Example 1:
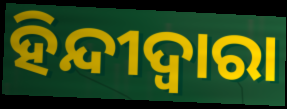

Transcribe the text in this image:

ହିନ୍ଦୀଦ୍ଵାରା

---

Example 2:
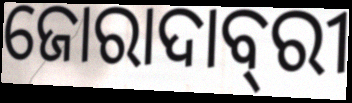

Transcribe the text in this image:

ଜୋରାଦାବ୍‌ରୀ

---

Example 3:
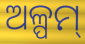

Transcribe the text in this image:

ଅଳ୍ପମ୍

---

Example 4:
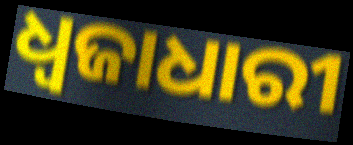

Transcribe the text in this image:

ଧ୍ଵଜାଧାରୀ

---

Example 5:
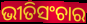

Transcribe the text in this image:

ଭୀତିସଂଚାର